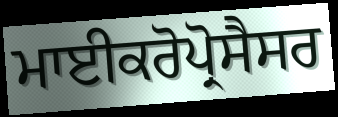
ਮਾਈਕਰੋਪ੍ਰੋਸੈਸਰ